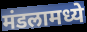
मंडलामध्ये